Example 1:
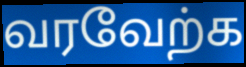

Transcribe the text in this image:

வரவேற்க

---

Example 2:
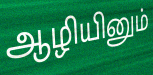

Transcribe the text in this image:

ஆழியினும்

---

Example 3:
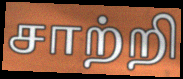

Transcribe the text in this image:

சாற்றி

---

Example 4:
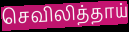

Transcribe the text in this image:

செவிலித்தாய்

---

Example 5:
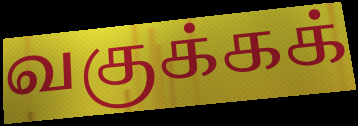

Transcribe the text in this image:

வகுக்கக்